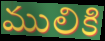
ములికి